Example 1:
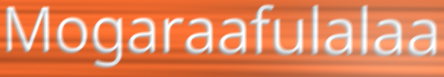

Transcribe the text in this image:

Mogaraafulalaa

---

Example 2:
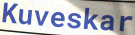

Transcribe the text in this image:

Kuveskar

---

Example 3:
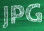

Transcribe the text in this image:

JPG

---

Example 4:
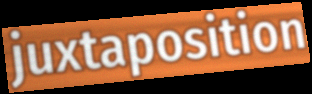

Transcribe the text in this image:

juxtaposition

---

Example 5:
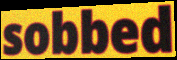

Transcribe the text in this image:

sobbed